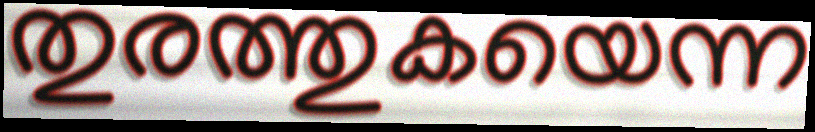
തുരത്തുകയെന്ന